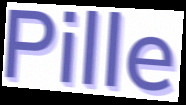
Pille